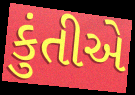
કુંતીએ